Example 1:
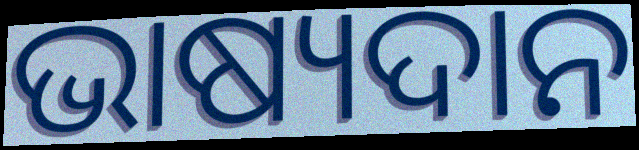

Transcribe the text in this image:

ଭାଷ୍ୟଦାନ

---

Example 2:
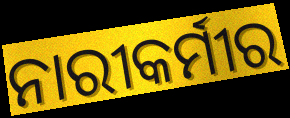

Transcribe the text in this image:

ନାରୀକର୍ମୀର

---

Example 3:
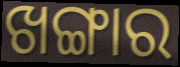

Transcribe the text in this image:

ଖଙ୍ଗାର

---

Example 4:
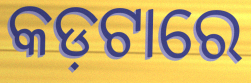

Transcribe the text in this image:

କଡ଼ଟାରେ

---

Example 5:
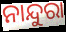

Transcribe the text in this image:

ନାନ୍ଦୁରା